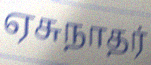
ஏசுநாதர்